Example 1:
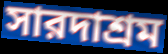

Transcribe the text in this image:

সারদাশ্রম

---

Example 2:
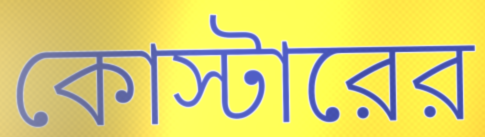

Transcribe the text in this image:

কোস্টারের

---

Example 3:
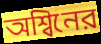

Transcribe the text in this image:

অশ্বিনের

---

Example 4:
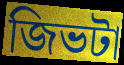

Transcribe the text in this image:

জিভটা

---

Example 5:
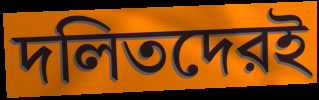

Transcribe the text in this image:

দলিতদেরই